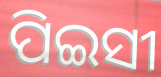
ପିଇସୀ